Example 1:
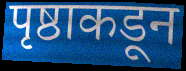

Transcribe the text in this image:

पृष्ठाकडून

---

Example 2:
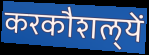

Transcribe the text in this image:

करकौशल्यें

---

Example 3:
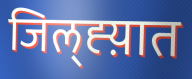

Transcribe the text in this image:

जिल्ह्य़ात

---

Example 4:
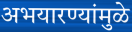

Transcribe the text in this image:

अभयारण्यांमुळे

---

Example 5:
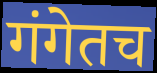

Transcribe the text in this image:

गंगेतच